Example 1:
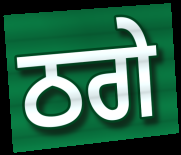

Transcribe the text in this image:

ਠਗੇ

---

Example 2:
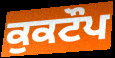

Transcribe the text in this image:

ਕੁਕਟੌਪ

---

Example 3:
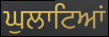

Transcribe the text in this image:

ਘੁਲਾਟਿਆਂ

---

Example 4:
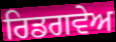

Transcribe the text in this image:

ਰਿਡਗਵੇਅ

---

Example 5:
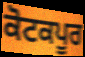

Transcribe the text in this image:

ਕੋਟਕਪੂਰ